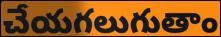
చేయగలుగుతాం